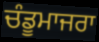
ਚੰਡੂਮਾਜਰਾ